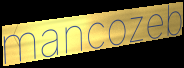
mancozeb